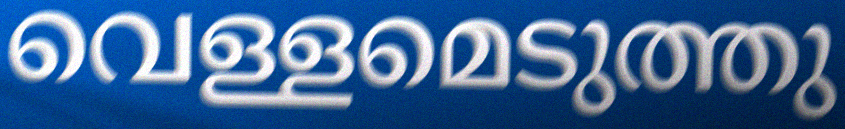
വെള്ളമെടുത്തു